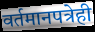
वर्तमानपत्रेही